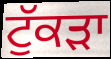
ਟੁੱਕੜਾ